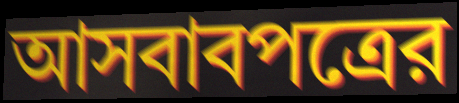
আসবাবপত্রের